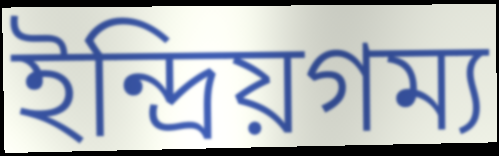
ইন্দ্রিয়গম্য